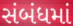
સંબંધમાં